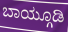
ಬಾಯ್ಗೂಡಿ